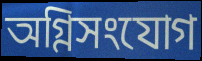
অগ্নিসংযোগ